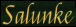
Salunke